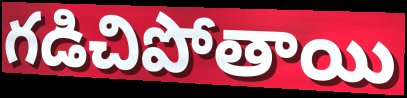
గడిచిపోతాయి